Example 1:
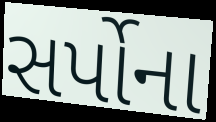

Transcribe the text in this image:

સર્પોના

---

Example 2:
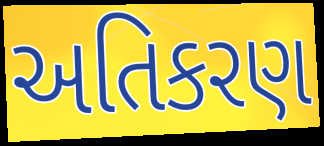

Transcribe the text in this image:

અતિકરણ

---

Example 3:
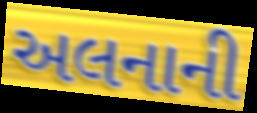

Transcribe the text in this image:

અલનાની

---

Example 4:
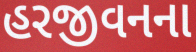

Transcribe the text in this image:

હરજીવનના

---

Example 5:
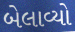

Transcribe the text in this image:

બેલાવ્યો